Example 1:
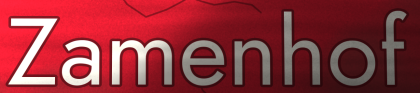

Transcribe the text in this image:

Zamenhof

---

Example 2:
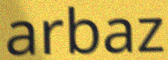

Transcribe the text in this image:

arbaz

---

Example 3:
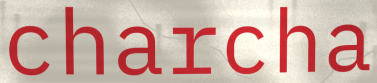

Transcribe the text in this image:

charcha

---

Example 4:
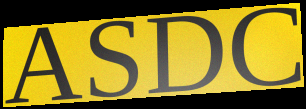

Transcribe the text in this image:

ASDC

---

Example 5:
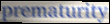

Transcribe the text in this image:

prematurity